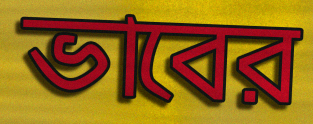
ভাবের